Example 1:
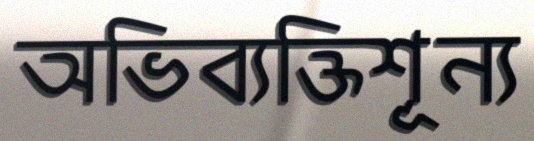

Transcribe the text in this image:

অভিব্যক্তিশূন্য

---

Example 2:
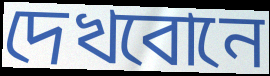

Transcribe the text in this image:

দেখবোনে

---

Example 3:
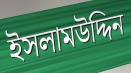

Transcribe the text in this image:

ইসলামউদ্দিন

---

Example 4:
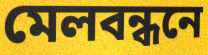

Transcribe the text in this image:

মেলবন্ধনে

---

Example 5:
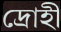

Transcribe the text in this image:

দ্রোহী